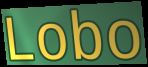
Lobo